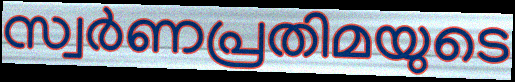
സ്വർണപ്രതിമയുടെ